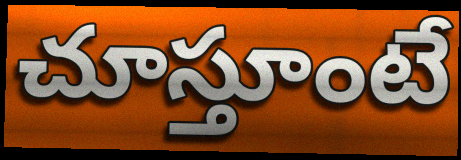
చూస్తూంటే